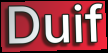
Duif